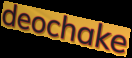
deochake